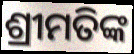
ଶ୍ରୀମତିଙ୍କ